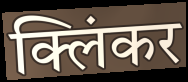
क्लिंकर